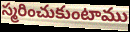
స్మరించుకుంటాము